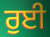
ਰੁਈ